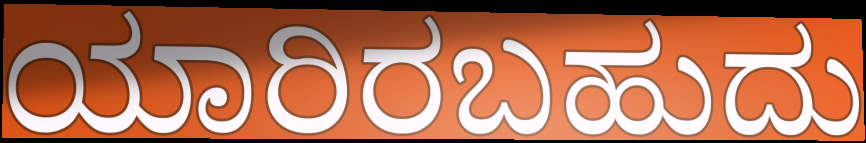
ಯಾರಿರಬಹುದು